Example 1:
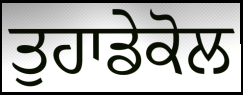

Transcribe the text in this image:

ਤੁਹਾਡੇਕੋਲ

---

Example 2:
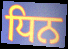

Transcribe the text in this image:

ਧਿਨ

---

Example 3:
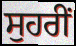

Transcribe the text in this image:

ਸੁਹਰੀਂ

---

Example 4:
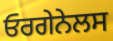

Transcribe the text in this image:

ਓਰਗੇਨੇਲਸ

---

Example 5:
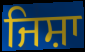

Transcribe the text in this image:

ਜਿਸ਼ਾ